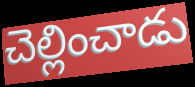
చెల్లించాడు